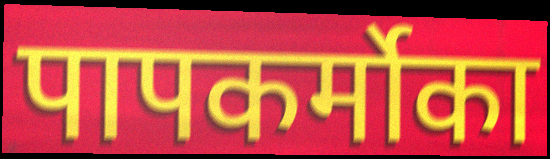
पापकर्मोका